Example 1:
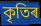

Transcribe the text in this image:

কৃতিৰ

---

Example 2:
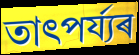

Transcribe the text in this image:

তাৎপৰ্য্যৰ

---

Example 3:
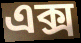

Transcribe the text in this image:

এক্স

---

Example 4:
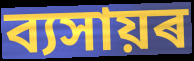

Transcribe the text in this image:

ব্যসায়ৰ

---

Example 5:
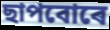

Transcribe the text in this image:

ছাপবোৰে